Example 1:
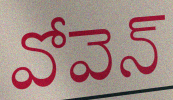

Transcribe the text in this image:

వోవెన్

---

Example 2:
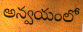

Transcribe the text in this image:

అన్వయంలో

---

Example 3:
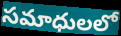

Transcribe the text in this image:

సమాధులలో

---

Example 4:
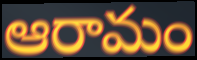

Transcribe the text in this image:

ఆరామం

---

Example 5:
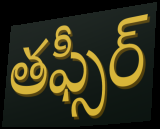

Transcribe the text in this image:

తఫ్సీర్